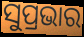
ସୁପ୍ରଭାର